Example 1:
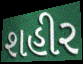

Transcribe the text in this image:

શહીર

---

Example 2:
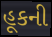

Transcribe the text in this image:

હૂકની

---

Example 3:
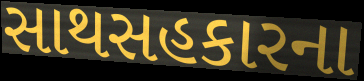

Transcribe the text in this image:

સાથસહકારના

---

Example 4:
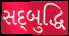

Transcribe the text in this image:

સદ્‌બુદ્ધિ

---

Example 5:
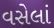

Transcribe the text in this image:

વસેલાં